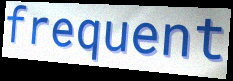
frequent